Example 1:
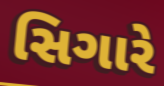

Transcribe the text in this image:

સિગારે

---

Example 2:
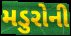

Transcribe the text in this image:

મડુરોની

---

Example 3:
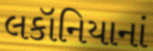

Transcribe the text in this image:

લકૉનિયાનાં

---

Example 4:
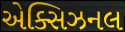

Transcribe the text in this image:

એક્સિઝનલ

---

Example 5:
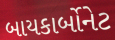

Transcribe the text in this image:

બાયકાર્બોનેટ